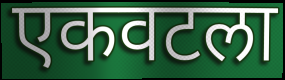
एकवटला